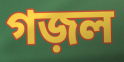
গজ়ল